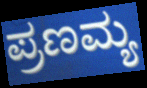
ಪ್ರಣಮ್ಯ